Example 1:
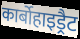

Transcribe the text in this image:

कार्बोहाइड्रैट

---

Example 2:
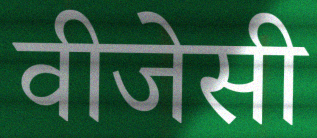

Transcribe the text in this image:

वीजेसी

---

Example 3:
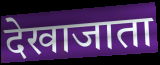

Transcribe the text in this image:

देखाजाता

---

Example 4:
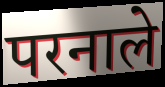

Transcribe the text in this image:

परनाले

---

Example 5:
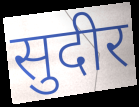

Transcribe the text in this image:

सुदीर